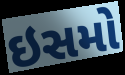
ઇસમો